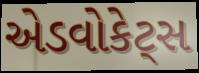
એડવોકેટ્સ